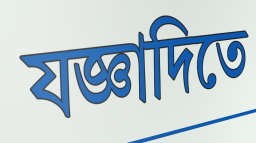
যজ্ঞাদিতে